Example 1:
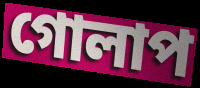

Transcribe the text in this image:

গোলাপ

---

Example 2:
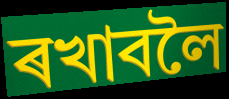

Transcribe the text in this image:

ৰখাবলৈ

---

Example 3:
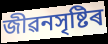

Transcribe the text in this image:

জীৱনসৃষ্টিৰ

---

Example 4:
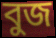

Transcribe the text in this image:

বুজ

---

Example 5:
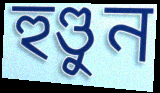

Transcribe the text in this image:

হুণ্ডুন